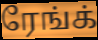
ரேங்க்